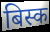
बिस्क